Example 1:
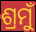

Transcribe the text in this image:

ଶ୍ରମୁଁ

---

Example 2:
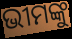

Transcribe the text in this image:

ଭୀମଙ୍କୁ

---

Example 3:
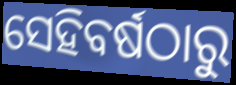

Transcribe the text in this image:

ସେହିବର୍ଷଠାରୁ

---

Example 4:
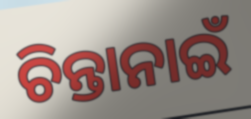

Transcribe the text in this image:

ଚିନ୍ତାନାଇଁ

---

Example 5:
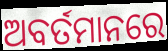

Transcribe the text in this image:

ଅବର୍ତମାନରେ